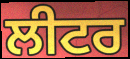
ਲੀਟਰ